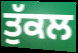
ਤੁੱਕਲ